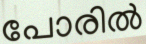
പോരിൽ